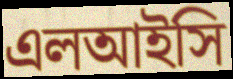
এলআইসি